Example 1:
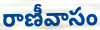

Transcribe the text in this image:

రాణీవాసం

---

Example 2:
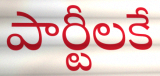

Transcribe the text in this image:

పార్టీలకే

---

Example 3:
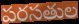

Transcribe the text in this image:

పరసతుల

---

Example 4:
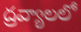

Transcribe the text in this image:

ద్రవ్యాలలో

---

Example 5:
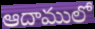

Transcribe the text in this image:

ఆదాములో